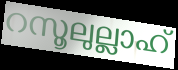
റസൂലുല്ലാഹ്